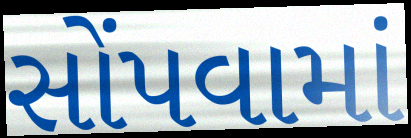
સોંપવામાં